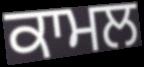
ਕਾਮਲ